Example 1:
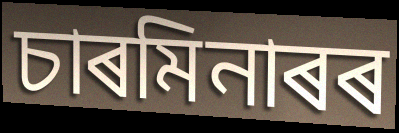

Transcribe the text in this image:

চাৰমিনাৰৰ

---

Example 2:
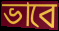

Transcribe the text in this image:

ভাবে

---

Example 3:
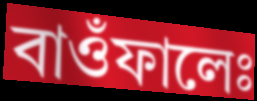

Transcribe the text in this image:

বাওঁফালেঃ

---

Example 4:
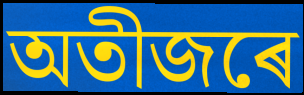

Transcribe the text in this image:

অতীজৰে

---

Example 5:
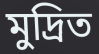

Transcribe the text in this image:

মুদ্ৰিত